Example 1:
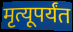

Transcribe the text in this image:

मृत्यूपर्यंत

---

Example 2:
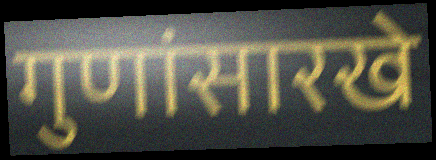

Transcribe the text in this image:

गुणांसारखे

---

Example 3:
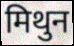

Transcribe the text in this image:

मिथुन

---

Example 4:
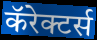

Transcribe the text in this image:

कॅरेक्टर्स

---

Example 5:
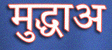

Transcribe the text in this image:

मुद्धाअ